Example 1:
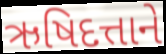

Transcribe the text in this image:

ઋષિદત્તાને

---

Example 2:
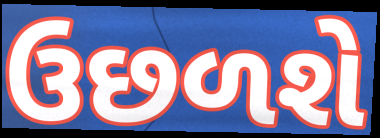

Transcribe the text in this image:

ઉછળશે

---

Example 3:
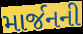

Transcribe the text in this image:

માર્જનની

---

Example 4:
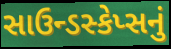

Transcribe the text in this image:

સાઉન્ડસ્કેપ્સનું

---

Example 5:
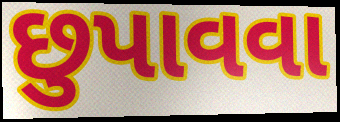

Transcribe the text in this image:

છુપાવવા